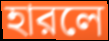
হারলে